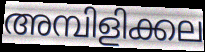
അമ്പിളിക്കല